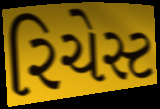
રિચેસ્ટ